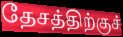
தேசத்திற்குச்